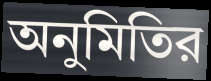
অনুমিতির